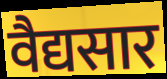
वैद्यसार